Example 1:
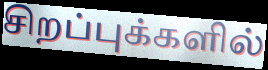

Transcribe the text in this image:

சிறப்புக்களில்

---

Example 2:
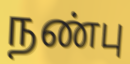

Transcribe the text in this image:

நண்பு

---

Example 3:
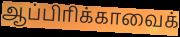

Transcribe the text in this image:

ஆப்பிரிக்காவைக்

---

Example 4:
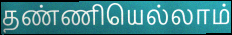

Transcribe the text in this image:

தண்ணியெல்லாம்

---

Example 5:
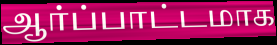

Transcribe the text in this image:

ஆர்ப்பாட்டமாக